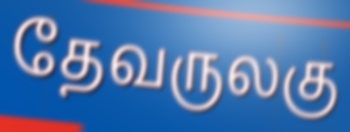
தேவருலகு